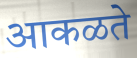
आकळते